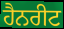
ਹੈਨਰੀਟ